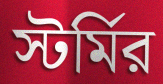
স্টর্মির